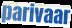
parivaar